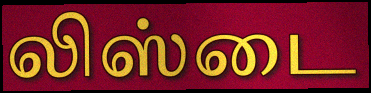
லிஸ்டை